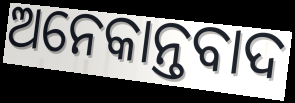
ଅନେକାନ୍ତବାଦ